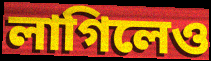
লাগিলেও